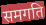
समगति